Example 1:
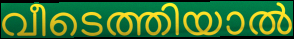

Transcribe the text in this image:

വീടെത്തിയാൽ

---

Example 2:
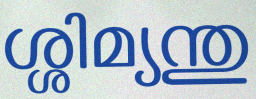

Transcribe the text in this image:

ശ്ശിമ്യന്തു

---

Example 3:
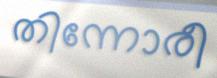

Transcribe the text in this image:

തിന്നോരീ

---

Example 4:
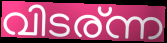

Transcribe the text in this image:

വിടര്ന്ന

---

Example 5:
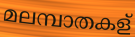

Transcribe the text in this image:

മലമ്പാതകള്